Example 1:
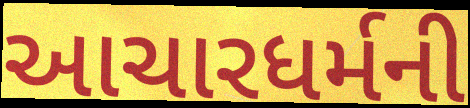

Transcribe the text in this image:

આચારધર્મની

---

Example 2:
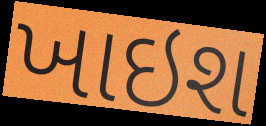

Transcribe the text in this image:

ખાઇશ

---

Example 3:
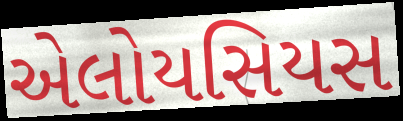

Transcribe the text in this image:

એલોયસિયસ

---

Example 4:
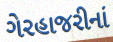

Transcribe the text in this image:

ગેરહાજરીનાં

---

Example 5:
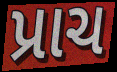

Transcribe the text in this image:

પ્રાચ